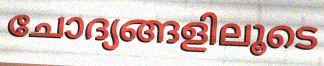
ചോദ്യങ്ങളിലൂടെ